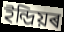
ইন্দ্ৰিয়ৰ